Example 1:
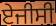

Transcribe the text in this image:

ਏਜੀਸੀ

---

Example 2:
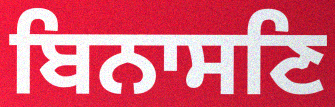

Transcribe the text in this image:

ਬਿਨਾਸਣਿ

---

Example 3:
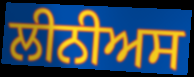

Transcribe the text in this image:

ਲੀਨੀਅਸ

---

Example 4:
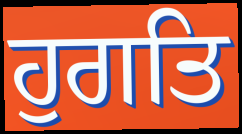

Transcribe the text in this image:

ਹੁਗਤਿ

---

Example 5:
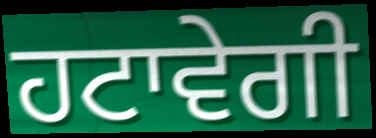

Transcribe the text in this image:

ਹਟਾਵੇਗੀ